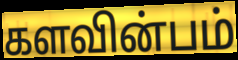
களவின்பம்